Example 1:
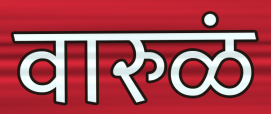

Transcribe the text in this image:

वारुळं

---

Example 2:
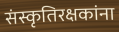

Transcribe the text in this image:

संस्कृतिरक्षकांना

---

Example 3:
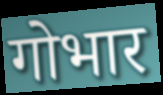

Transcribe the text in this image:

गोभार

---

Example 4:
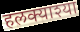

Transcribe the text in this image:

हलक्याश्या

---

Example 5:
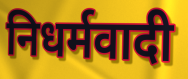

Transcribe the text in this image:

निधर्मवादी